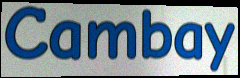
Cambay